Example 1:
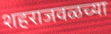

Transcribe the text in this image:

शहराजवळच्या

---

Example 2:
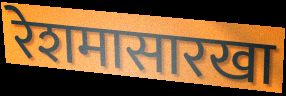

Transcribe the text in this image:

रेशमासारखा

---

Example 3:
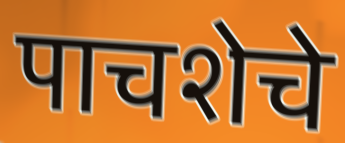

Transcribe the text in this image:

पाचशेचे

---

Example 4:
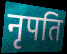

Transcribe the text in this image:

नृपति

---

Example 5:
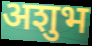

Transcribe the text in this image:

अशुभ